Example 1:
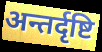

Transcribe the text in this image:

अन्तर्दृष्टि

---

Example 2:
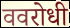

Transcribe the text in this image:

ववरोधी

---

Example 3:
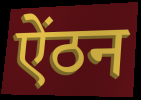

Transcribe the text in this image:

ऐंठन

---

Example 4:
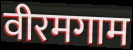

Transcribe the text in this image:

वीरमगाम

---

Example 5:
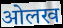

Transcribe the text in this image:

ओलख